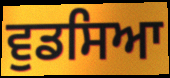
ਵੁਡਸਿਆ